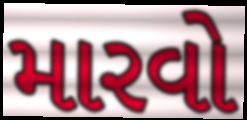
મારવો